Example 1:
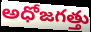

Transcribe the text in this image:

అధోజగత్తు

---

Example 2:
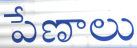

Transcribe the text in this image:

పేణాలు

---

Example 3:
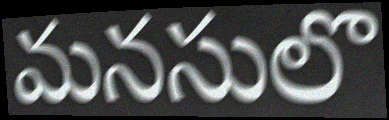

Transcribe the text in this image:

మనసులొ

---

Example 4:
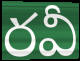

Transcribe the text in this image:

రవీ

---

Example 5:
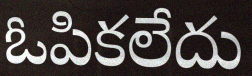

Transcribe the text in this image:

ఓపికలేదు